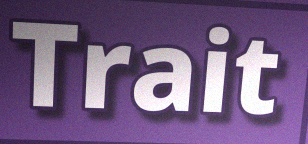
Trait